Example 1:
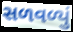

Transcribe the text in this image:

સળવળ્યું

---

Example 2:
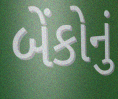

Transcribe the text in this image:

બેંકોનું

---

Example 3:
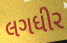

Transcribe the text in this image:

લગધીર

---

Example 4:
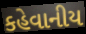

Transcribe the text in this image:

કહેવાનીય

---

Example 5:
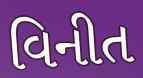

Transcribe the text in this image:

વિનીત